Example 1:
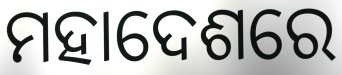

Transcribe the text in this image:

ମହାଦେଶରେ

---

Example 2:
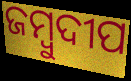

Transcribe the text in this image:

ଜମ୍ବୁଦୀପ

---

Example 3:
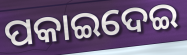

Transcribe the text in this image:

ପକାଇଦେଇ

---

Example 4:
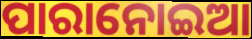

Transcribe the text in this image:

ପାରାନୋଇଆ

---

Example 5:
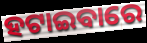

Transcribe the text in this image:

ହଟାଇବାରେ